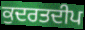
ਕੁਦਰਤਦੀਪ